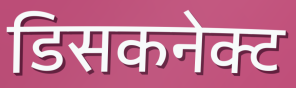
डिसकनेक्ट